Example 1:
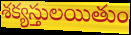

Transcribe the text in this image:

శక్యస్తులయితుం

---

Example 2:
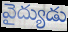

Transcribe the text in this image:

వైద్యుడు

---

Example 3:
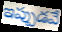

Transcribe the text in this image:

ఇప్పుడవే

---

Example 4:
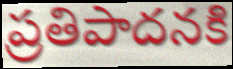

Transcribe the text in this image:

ప్రతిపాదనకి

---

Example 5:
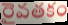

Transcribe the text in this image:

రైవతకం